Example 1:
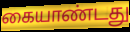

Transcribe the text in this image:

கையாண்டது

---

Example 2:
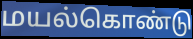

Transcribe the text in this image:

மயல்கொண்டு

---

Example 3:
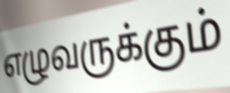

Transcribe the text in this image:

எழுவருக்கும்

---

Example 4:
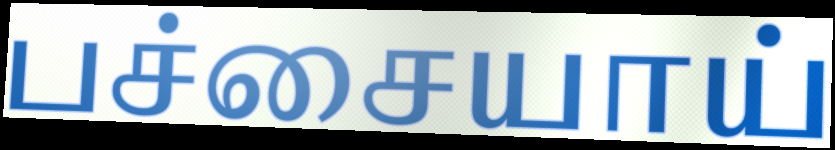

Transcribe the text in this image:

பச்சையாய்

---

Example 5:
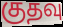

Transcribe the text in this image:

குதவு